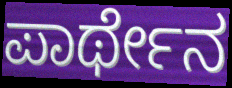
ಪಾರ್ಥೇನ